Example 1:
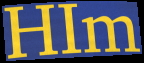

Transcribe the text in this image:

HIm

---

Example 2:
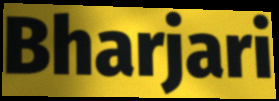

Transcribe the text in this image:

Bharjari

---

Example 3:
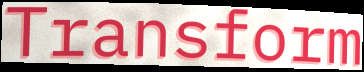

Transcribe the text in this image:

Transform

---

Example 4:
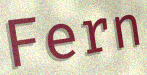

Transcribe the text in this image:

Fern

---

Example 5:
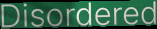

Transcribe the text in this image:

Disordered